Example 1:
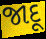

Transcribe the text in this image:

જાદૂ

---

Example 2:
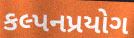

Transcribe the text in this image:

કલ્પનપ્રયોગ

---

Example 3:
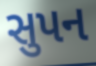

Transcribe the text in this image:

સુપન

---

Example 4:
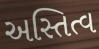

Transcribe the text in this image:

અસ્તિત્વ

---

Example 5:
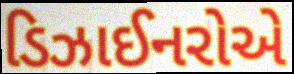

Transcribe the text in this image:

ડિઝાઈનરોએ